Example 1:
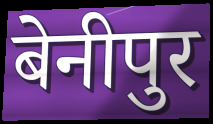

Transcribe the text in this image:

बेनीपुर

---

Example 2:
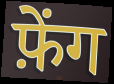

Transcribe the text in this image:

फ़ेंग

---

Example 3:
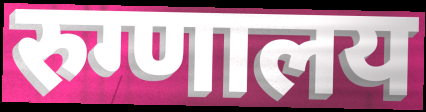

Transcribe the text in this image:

रुग्णालय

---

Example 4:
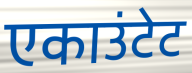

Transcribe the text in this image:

एकाउंटेट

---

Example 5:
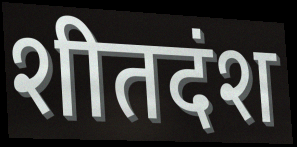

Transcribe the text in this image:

शीतदंश